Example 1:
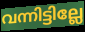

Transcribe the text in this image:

വന്നിട്ടില്ലേ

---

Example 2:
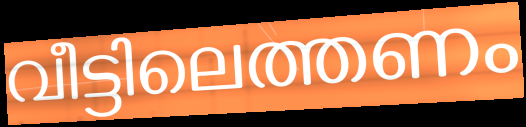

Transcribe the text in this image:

വീട്ടിലെത്തണം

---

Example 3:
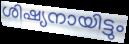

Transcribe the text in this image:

ശിഷ്യനായിട്ടും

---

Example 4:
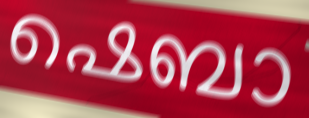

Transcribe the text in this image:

ഷെബാ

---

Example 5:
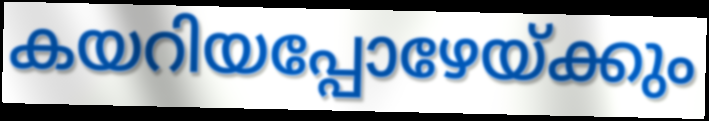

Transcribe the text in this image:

കയറിയപ്പോഴേയ്ക്കും